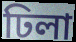
ঢিলা